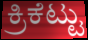
ಕ್ರಿಕೆಟ್ಟು